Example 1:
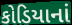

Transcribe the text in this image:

કોડિયાનાં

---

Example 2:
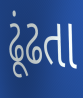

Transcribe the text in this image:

ઢૂંઢતા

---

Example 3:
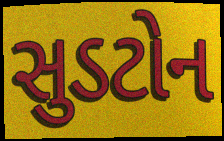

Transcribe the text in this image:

સુડટોન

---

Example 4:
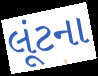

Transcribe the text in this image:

લૂંટના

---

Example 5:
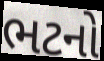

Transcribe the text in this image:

ભટનો